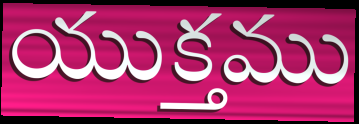
యుక్తము